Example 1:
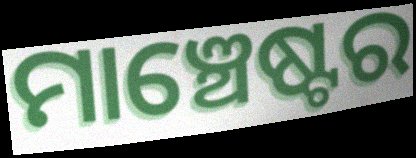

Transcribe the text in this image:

ମାଞ୍ଚେଷ୍ଟର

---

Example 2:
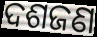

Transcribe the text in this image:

ଦଶଜଣ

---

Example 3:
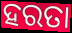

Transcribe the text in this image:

ହରତା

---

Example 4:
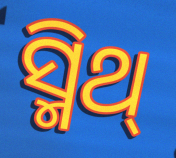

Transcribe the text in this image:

ସ୍ମିଥ୍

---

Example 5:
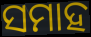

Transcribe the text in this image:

ସମାହ